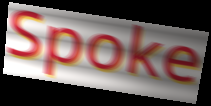
Spoke